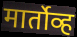
मार्तोव्ह